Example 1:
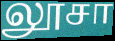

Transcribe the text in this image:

லூசா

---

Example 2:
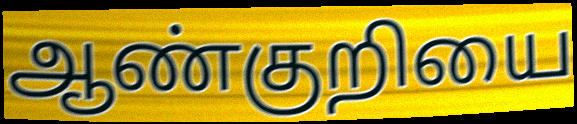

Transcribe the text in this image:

ஆண்குறியை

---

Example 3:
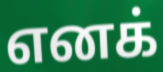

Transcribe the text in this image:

எனக்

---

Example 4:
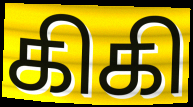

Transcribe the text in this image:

கிகி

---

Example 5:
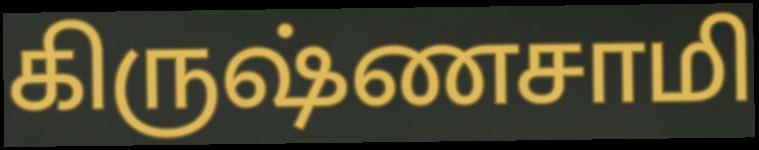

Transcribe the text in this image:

கிருஷ்ணசாமி